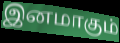
இனமாகும்